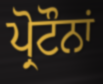
ਪ੍ਰੋਟੌਨਾਂ